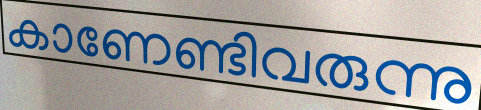
കാണേണ്ടിവരുന്നു